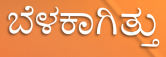
ಬೆಳಕಾಗಿತ್ತು